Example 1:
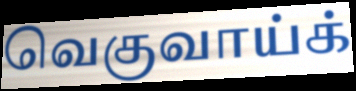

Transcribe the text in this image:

வெகுவாய்க்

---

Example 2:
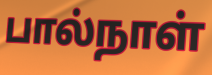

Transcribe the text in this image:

பால்நாள்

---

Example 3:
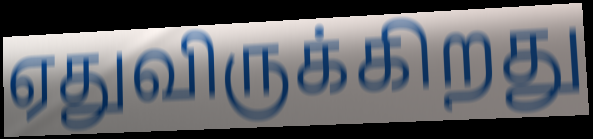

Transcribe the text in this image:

ஏதுவிருக்கிறது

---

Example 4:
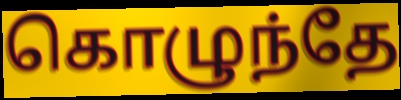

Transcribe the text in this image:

கொழுந்தே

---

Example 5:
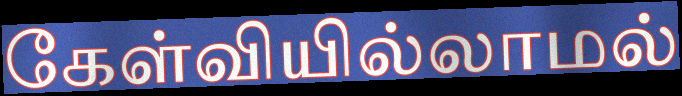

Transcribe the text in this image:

கேள்வியில்லாமல்